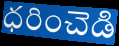
ధరించెడి